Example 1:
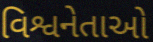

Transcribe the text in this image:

વિશ્વનેતાઓ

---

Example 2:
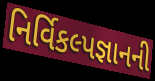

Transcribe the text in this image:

નિર્વિકલ્પજ્ઞાનની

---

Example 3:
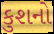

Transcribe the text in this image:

કુશનો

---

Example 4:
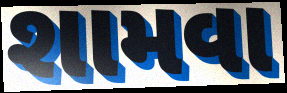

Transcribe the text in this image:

શામવા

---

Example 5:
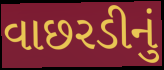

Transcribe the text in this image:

વાછરડીનું